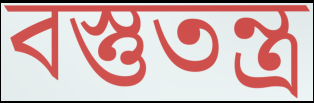
বস্তুতন্ত্র